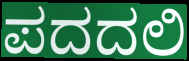
ಪದದಲಿ